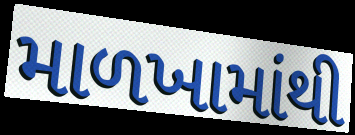
માળખામાંથી